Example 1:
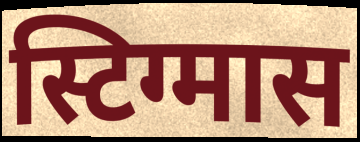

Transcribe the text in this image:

स्टिग्मास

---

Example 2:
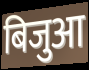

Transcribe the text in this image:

बिजुआ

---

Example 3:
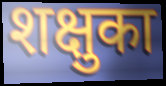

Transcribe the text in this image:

शक्षुका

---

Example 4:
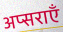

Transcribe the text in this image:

अप्सराएँ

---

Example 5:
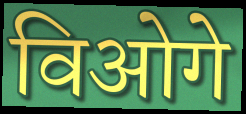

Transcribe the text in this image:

विओगे